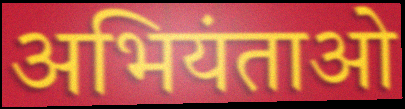
अभियंताओ